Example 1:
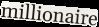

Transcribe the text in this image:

millionaire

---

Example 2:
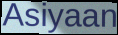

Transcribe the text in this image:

Asiyaan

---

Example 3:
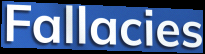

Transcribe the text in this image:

Fallacies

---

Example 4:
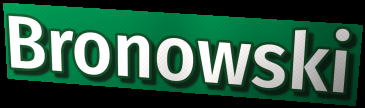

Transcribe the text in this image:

Bronowski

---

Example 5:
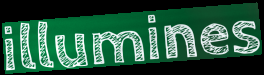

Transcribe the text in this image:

illumines